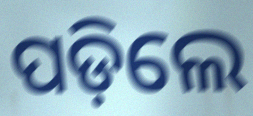
ପଡ଼ିଲେ